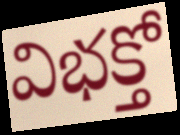
విభక్తో